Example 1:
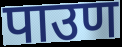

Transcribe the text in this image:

पाउण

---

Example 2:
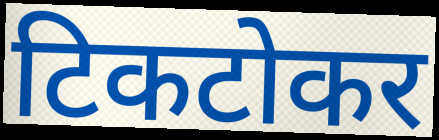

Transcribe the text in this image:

टिकटोकर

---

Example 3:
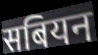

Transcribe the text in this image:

सबियन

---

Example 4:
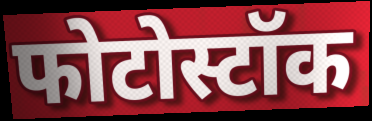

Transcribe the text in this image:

फोटोस्टॉक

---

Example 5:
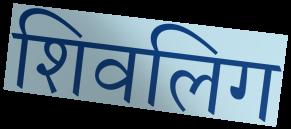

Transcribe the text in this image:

शिवलिग